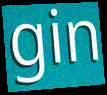
gin